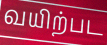
வயிற்பட